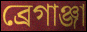
ব্রেগাঞ্জা